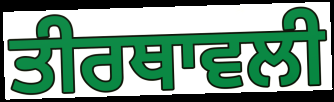
ਤੀਰਥਾਵਲੀ